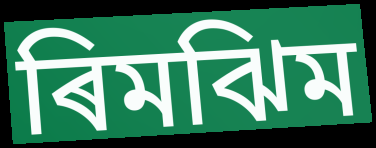
ৰিমঝিম